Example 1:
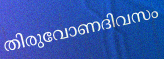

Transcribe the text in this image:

തിരുവോണദിവസം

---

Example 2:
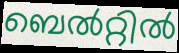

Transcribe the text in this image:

ബെൽറ്റിൽ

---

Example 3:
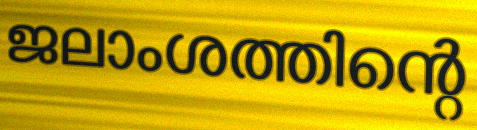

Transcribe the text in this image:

ജലാംശത്തിന്റെ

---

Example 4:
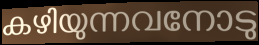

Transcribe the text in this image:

കഴിയുന്നവനോടു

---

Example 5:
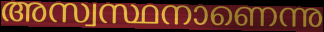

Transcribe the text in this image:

അസ്വസ്ഥനാണെന്നു